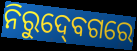
ନିରୁଦ୍‍ବେଗରେ